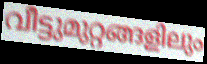
വീട്ടുമുറ്റങ്ങളിലും